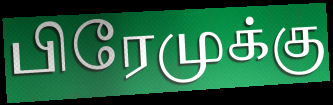
பிரேமுக்கு